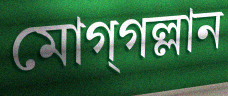
মোগ্‌গল্লান